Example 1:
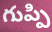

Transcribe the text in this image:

గుప్పి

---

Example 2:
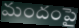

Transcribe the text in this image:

మందంపై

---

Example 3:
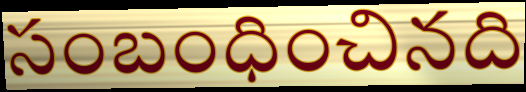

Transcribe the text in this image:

సంబంధించినది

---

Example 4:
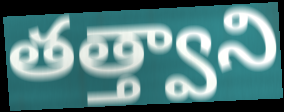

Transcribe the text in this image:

తత్త్వాని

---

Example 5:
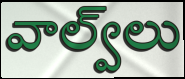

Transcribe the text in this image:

వాల్వ్‌లు